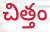
చిత్తం